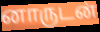
னாருடன்